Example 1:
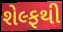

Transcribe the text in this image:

શેલ્ફથી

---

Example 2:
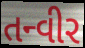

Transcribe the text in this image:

તન્વીર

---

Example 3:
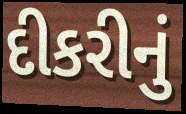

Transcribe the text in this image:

દીકરીનું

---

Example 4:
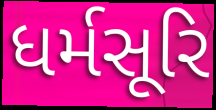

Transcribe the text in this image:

ધર્મસૂરિ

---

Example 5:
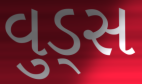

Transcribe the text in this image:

વુડ્સ